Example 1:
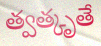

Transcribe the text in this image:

త్వత్కృతే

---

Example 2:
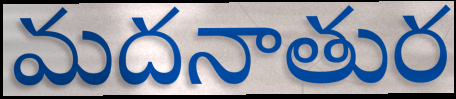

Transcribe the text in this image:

మదనాతుర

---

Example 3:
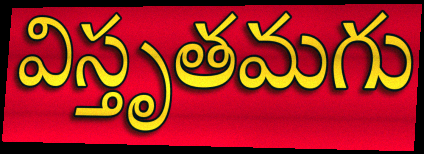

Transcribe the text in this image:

విస్తృతమగు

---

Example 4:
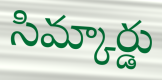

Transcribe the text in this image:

సిమ్కార్డు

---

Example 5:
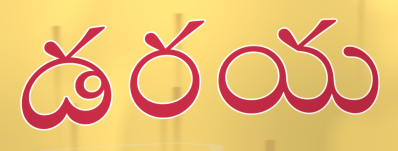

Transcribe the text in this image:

డరయ